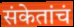
संकेतांचं